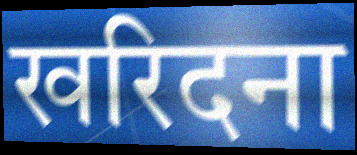
खरिदना